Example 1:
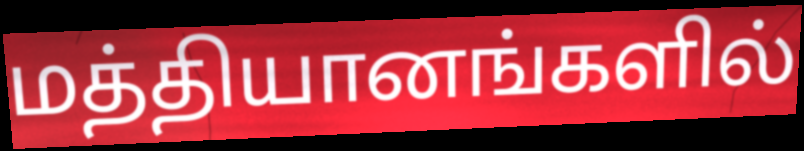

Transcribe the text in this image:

மத்தியானங்களில்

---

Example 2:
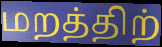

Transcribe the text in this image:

மறத்திற்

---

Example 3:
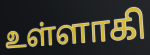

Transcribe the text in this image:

உள்ளாகி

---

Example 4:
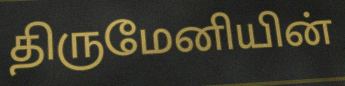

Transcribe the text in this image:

திருமேனியின்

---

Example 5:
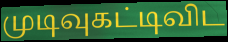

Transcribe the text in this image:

முடிவுகட்டிவிட